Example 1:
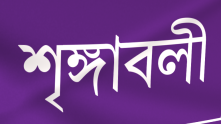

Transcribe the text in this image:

শৃঙ্গাবলী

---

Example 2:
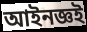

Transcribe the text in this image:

আইনজ্ঞই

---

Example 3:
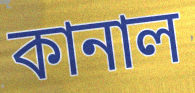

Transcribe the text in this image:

কানাল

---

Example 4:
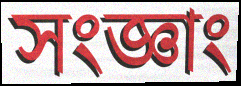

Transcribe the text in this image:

সংজ্ঞাং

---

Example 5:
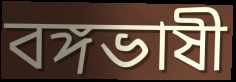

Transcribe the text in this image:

বঙ্গভাষী